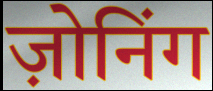
ज़ोनिंग